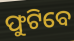
ଫୁଟିବେ